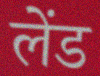
लेंड